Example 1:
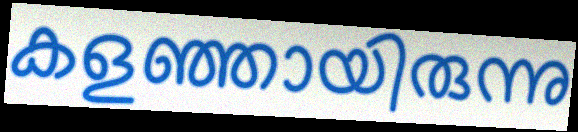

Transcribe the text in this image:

കളഞ്ഞായിരുന്നു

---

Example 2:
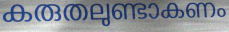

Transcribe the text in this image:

കരുതലുണ്ടാകണം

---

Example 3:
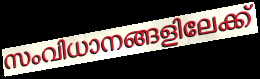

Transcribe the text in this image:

സംവിധാനങ്ങളിലേക്ക്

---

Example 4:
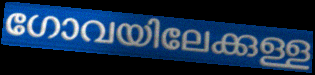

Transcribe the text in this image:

ഗോവയിലേക്കുള്ള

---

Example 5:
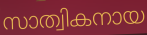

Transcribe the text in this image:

സാത്വികനായ